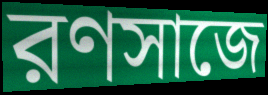
রণসাজে